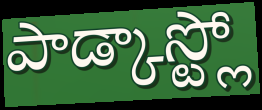
పాడ్కాస్ట్లో